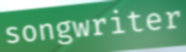
songwriter